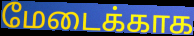
மேடைக்காக